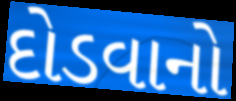
દોડવાનો